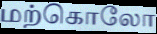
மற்கொலோ